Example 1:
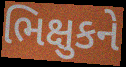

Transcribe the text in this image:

ભિક્ષુકને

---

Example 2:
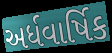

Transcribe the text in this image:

અર્ધવાર્ષિક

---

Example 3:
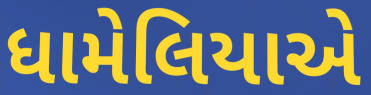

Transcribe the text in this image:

ધામેલિયાએ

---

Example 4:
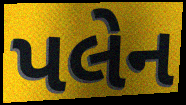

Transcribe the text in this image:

પલેન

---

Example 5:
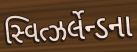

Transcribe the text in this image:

સ્વિત્ઝર્લેન્ડના